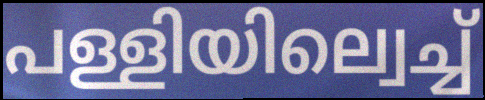
പള്ളിയില്വെച്ച്